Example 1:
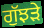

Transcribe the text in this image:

ਗੁੱਝੜੇ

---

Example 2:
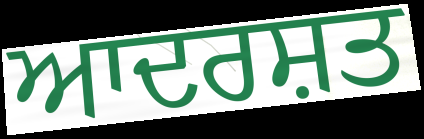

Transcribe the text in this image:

ਆਦਰਸ਼ਤ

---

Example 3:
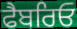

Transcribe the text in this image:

ਫੈਬਰਿਓ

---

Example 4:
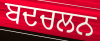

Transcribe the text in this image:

ਬਦਚਲਨ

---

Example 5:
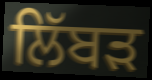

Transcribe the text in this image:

ਲਿੱਬੜ